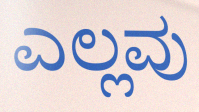
ಎಲ್ಲವು